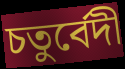
চতুৰ্বেদী